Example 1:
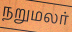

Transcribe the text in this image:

நறுமலர்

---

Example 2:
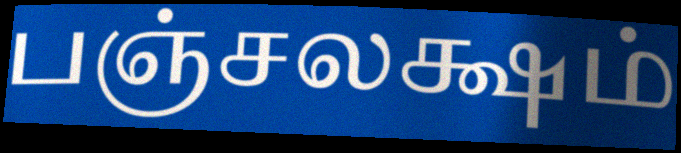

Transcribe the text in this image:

பஞ்சலக்ஷம்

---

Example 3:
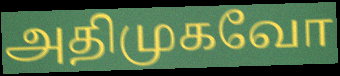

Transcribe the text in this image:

அதிமுகவோ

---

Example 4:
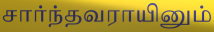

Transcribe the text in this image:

சார்ந்தவராயினும்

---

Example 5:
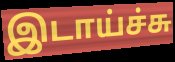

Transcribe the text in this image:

இடாய்ச்சு